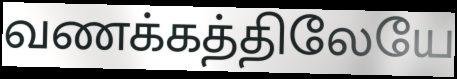
வணக்கத்திலேயே